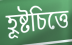
হূষ্টচিত্তে